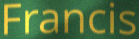
Francis